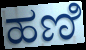
ಹಣಿ